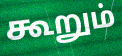
கூறும்